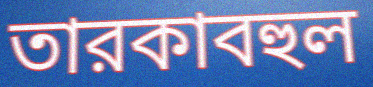
তারকাবহুল